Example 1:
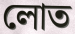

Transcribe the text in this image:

লোত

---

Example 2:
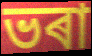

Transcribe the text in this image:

ভৰা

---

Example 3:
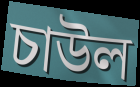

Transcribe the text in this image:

চাউল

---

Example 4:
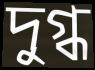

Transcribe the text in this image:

দুগ্ধ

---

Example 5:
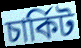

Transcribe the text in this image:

চাৰ্কিট